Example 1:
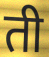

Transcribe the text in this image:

ती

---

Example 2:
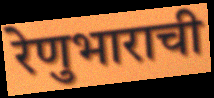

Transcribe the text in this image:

रेणुभाराची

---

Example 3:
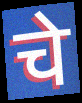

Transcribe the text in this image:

चे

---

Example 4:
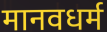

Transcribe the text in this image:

मानवधर्म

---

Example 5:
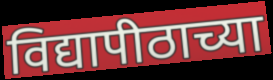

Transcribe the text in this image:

विद्यापीठाच्या